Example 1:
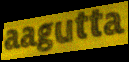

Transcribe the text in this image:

aagutta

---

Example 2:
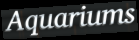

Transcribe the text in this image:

Aquariums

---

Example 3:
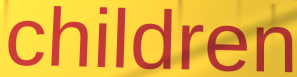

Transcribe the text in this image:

children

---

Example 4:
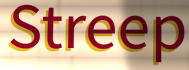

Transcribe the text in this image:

Streep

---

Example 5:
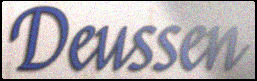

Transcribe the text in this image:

Deussen